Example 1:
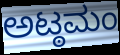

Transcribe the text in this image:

ಅಟ್ಠಮಂ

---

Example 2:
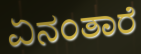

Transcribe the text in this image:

ಏನಂತಾರೆ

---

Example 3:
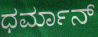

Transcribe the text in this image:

ಧರ್ಮಾನ್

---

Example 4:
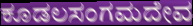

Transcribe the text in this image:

ಕೂಡಲಸಂಗಮದೇವ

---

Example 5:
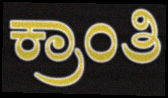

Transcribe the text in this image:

ಕ್ರಾಂತಿ